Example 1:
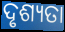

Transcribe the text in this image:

ଦୃଶ୍ୟତା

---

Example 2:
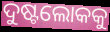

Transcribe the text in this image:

ଦୁଷ୍ଟଲୋକକୁ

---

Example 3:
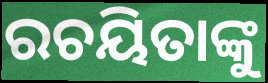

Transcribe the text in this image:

ରଚୟିତାଙ୍କୁ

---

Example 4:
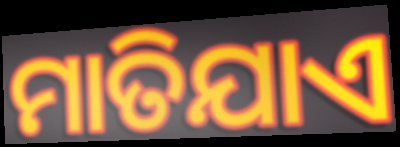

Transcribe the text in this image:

ମାତିଯାଏ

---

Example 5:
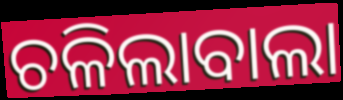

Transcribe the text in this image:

ଚଳିଲାବାଲା